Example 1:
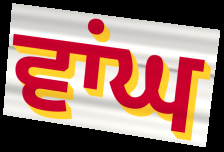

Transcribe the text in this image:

ਵਾਂਘ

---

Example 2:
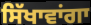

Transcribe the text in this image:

ਸਿੱਖਾਵਾਂਗਾ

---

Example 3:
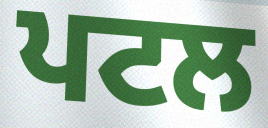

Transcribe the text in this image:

ਪਟਲ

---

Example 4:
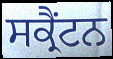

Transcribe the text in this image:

ਸਕ੍ਰੈਂਟਨ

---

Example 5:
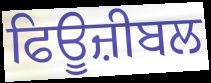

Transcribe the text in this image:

ਫਿਊਜ਼ੀਬਲ